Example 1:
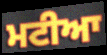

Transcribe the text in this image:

ਮਟੀਆ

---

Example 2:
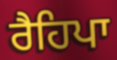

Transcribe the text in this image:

ਰੈਹਿਪਾ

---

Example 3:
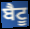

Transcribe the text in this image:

ਬੈਟੂ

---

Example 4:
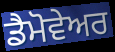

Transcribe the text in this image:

ਡੈਮੋਵੇਅਰ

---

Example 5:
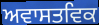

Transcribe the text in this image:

ਅਵਾਸਤਵਿਕ